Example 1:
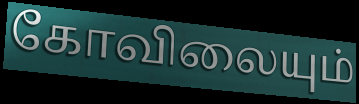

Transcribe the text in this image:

கோவிலையும்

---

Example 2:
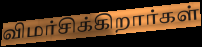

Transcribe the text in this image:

விமர்சிக்கிறார்கள்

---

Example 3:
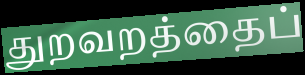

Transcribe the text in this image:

துறவறத்தைப்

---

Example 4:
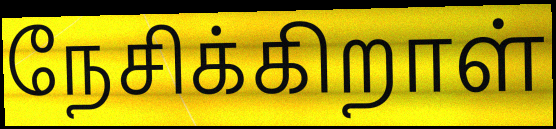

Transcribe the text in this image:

நேசிக்கிறாள்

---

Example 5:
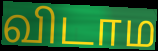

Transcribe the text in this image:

விடாம